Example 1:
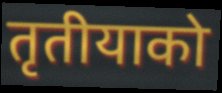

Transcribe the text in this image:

तृतीयाको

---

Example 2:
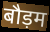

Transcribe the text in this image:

बौड़म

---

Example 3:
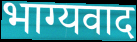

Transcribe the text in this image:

भाग्यवाद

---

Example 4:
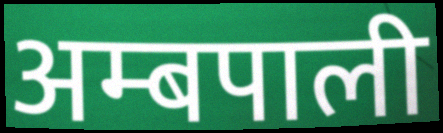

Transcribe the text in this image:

अम्बपाली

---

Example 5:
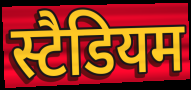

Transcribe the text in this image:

स्टैडियम